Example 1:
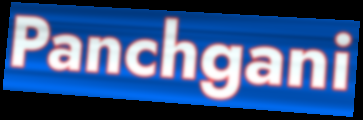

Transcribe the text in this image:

Panchgani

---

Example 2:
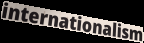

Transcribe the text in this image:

internationalism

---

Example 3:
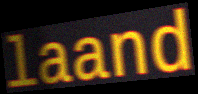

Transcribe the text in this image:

laand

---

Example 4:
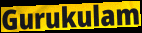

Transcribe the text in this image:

Gurukulam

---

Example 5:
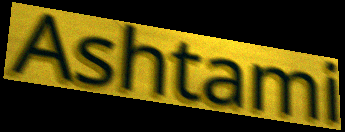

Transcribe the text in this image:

Ashtami